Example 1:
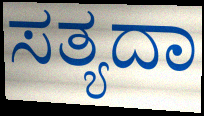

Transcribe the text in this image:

ಸತ್ಯದಾ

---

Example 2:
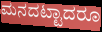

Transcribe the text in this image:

ಮನದಟ್ಟಾದರೂ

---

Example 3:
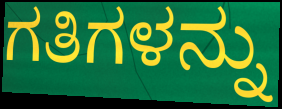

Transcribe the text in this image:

ಗತಿಗಳನ್ನು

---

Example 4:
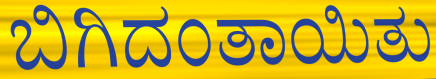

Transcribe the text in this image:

ಬಿಗಿದಂತಾಯಿತು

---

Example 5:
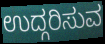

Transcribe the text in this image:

ಉದ್ಗರಿಸುವ